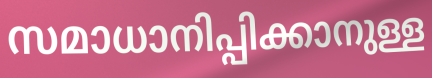
സമാധാനിപ്പിക്കാനുള്ള